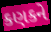
કણકને